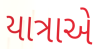
યાત્રાએ